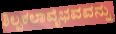
ಶಿಲ್ಪಕಲಾವೈಭವವನ್ನು